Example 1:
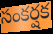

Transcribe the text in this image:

సంకర్షక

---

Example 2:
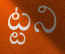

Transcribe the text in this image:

ట్టని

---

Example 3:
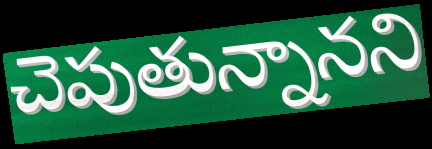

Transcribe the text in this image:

చెపుతున్నానని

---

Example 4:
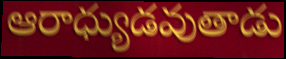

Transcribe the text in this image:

ఆరాధ్యుడవుతాడు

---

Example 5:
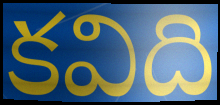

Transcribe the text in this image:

కవిది